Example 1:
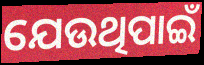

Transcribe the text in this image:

ଯେଉଥିପାଇଁ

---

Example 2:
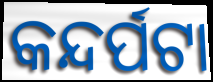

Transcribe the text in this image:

କନ୍ଦର୍ପଟା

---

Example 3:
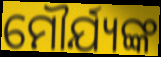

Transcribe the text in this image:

ମୌର୍ଯ୍ୟଙ୍କ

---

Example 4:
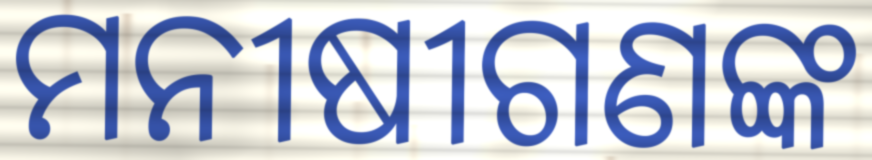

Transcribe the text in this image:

ମନୀଷୀଗଣଙ୍କ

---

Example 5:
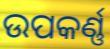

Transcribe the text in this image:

ଉପକର୍ଣ୍ଣ